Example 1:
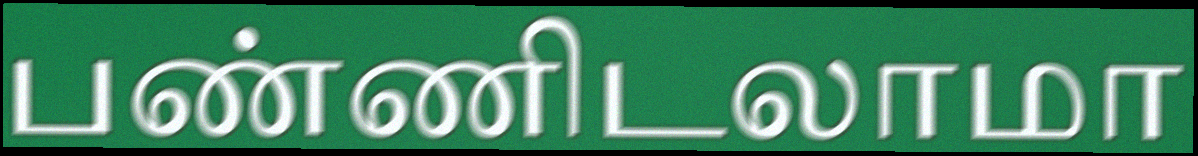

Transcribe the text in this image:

பண்ணிடலாமா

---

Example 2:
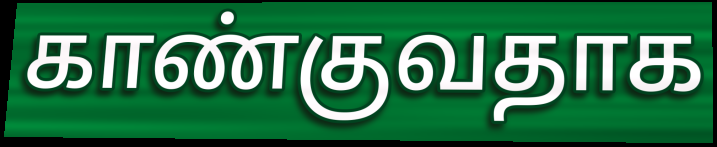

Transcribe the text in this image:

காண்குவதாக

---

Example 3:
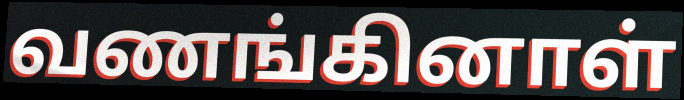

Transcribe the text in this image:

வணங்கினாள்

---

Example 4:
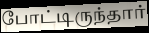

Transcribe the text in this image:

போட்டிருந்தார்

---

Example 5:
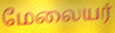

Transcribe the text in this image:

மேலையர்